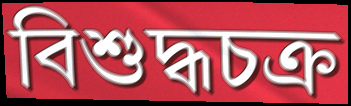
বিশুদ্ধচক্র